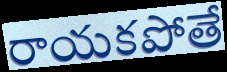
రాయకపోతే